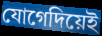
যোগেদিয়েই